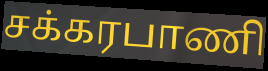
சக்கரபாணி